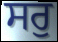
ਸਰੁ